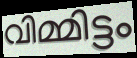
വിമ്മിട്ടം